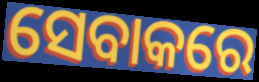
ସେବାକରେ